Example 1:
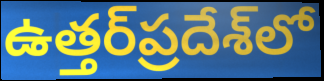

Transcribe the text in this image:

ఉత్తర్‌ప్రదేశ్‌లో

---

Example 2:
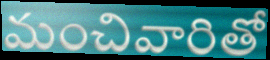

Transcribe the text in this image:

మంచివారితో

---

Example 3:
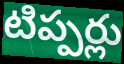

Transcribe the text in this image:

టిప్పర్లు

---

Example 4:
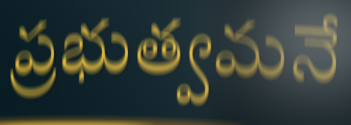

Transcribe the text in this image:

ప్రభుత్వమనే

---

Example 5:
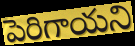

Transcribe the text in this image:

పెరిగాయని